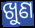
ଖୁଣ